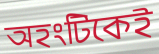
অহংটিকেই